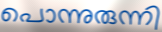
പൊന്നുരുന്നി